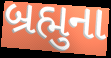
બ્રહ્મુના